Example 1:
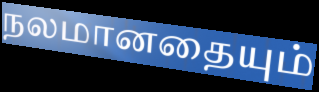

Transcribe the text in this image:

நலமானதையும்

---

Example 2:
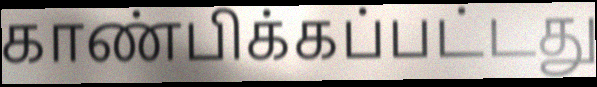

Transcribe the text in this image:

காண்பிக்கப்பட்டது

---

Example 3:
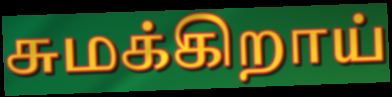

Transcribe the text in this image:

சுமக்கிறாய்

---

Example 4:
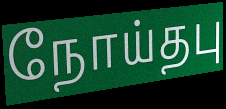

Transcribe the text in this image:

நோய்தபு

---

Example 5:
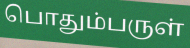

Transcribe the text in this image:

பொதும்பருள்